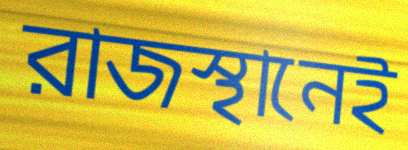
রাজস্থানেই